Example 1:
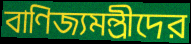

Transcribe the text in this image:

বাণিজ্যমন্ত্রীদের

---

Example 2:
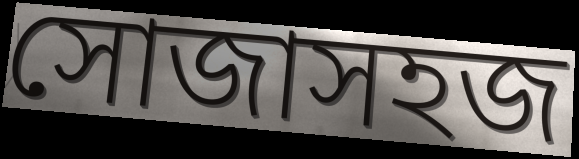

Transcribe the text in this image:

সোজাসহজ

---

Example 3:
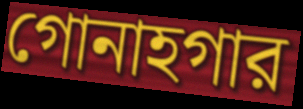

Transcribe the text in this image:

গোনাহগার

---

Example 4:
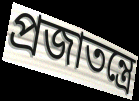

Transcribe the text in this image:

প্রজাতন্ত্রে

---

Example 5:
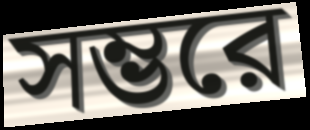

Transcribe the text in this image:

সম্ভরে